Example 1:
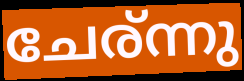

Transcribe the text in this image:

ചേര്ന്നു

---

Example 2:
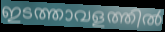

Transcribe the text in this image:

ഇടത്താവളത്തിൽ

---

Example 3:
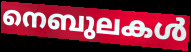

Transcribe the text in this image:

നെബുലകൾ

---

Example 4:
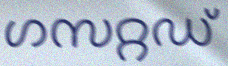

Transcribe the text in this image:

ഗസറ്റഡ്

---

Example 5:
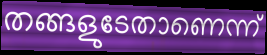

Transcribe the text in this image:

തങ്ങളുടേതാണെന്ന്